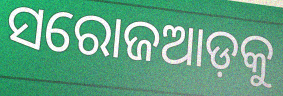
ସରୋଜଆଡ଼କୁ